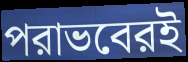
পরাভবেরই